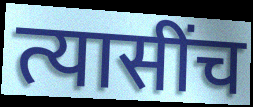
त्यासींच